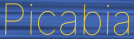
Picabia